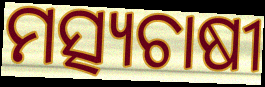
ମତ୍ସ୍ୟଚାଷୀ